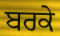
ਬਰਕੇ